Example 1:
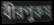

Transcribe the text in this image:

বীরপুরুষ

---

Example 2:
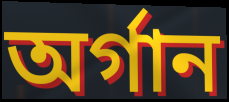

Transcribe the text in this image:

অর্গান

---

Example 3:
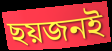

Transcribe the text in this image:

ছয়জনই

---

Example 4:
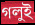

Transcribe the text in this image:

গলুই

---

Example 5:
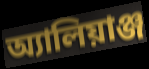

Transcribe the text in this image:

অ্যালিয়াঞ্জ